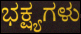
ಭಕ್ಷ್ಯಗಳು